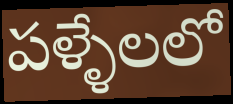
పళ్ళేలలో